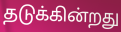
தடுக்கின்றது